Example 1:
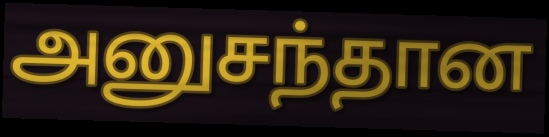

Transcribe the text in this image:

அனுசந்தான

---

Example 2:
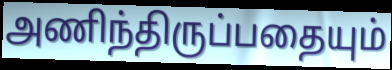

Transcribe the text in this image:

அணிந்திருப்பதையும்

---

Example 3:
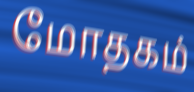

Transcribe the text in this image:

மோதகம்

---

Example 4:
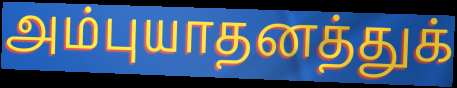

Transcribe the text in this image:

அம்புயாதனத்துக்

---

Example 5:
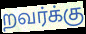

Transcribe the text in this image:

றவர்க்கு